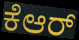
ಕೆಆರ್